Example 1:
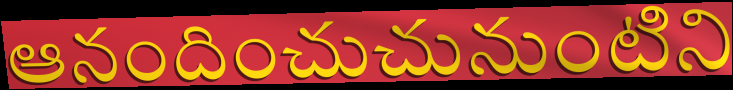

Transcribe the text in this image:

ఆనందించుచునుంటిని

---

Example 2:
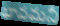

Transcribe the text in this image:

భావమనీ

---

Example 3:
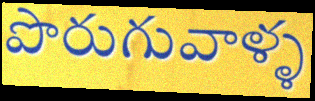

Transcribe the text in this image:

పొరుగువాళ్ళ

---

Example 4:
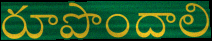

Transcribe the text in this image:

రూపొందాలి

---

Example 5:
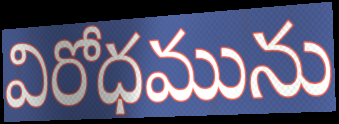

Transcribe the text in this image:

విరోధమును